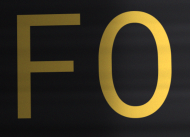
FO